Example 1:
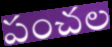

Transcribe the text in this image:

పంచల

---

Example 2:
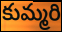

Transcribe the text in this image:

కుమ్మరి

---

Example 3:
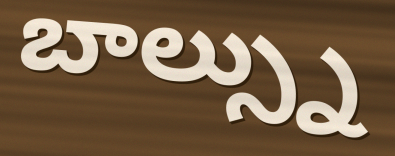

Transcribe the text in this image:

బాల్స్ను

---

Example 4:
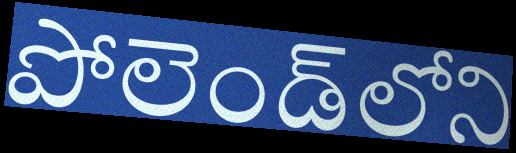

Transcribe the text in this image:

పోలెండ్‌లోని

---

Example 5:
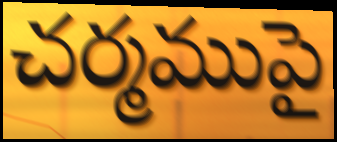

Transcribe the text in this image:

చర్మముపై